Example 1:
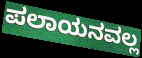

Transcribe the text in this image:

ಪಲಾಯನವಲ್ಲ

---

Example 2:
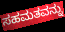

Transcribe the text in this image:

ಸಹಮತವನ್ನು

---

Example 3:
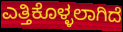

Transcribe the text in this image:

ಎತ್ತಿಕೊಳ್ಳಲಾಗಿದೆ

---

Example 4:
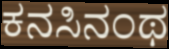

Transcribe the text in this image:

ಕನಸಿನಂಥ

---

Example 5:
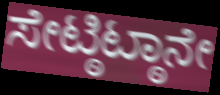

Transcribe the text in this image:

ಸೇಟ್ಠಿಟ್ಠಾನೇ